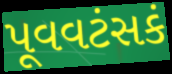
પૂવવટંસકં